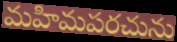
మహిమపరచును